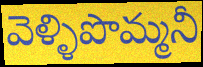
వెళ్ళిపొమ్మనీ